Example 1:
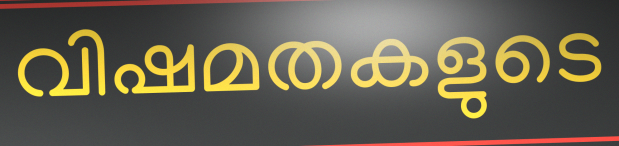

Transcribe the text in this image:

വിഷമതകളുടെ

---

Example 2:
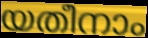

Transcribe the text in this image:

യതീനാം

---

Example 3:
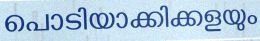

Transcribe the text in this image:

പൊടിയാക്കിക്കളയും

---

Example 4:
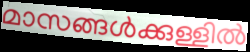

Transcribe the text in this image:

മാസങ്ങൾക്കുള്ളിൽ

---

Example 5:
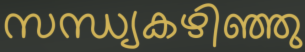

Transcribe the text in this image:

സന്ധ്യകഴിഞ്ഞു